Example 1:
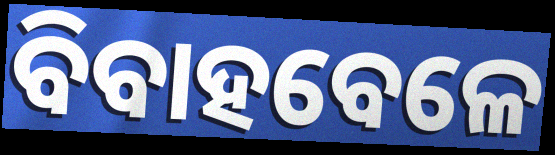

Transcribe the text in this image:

ବିବାହବେଳେ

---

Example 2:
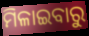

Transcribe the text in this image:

ମିଳାଇବାରୁ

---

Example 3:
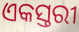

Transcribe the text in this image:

ଏକସ୍ତରୀ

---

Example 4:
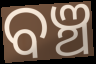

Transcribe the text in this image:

ବଞ୍ଚ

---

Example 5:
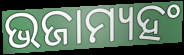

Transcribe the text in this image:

ଭଜାମ୍ୟହଂ